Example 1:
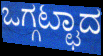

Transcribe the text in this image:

ಒಗ್ಗಟ್ಟಾದ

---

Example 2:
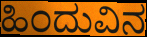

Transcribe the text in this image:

ಹಿಂದುವಿನ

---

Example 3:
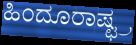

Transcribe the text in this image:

ಹಿಂದೂರಾಷ್ಟ್ರ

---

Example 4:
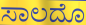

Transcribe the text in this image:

ಸಾಲದೊ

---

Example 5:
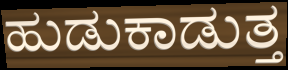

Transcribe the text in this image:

ಹುಡುಕಾಡುತ್ತ